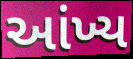
આંખ્ય